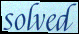
solved